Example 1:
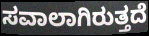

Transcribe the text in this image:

ಸವಾಲಾಗಿರುತ್ತದೆ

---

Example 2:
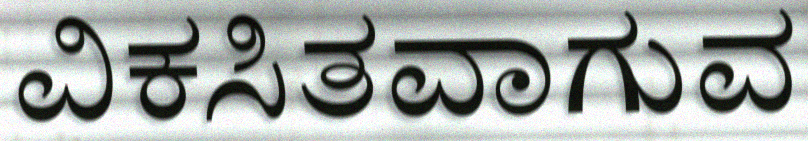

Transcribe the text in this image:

ವಿಕಸಿತವಾಗುವ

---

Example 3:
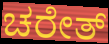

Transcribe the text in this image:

ಚರೇತ್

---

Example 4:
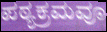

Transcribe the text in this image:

ಪಠ್ಯಕ್ರಮವೂ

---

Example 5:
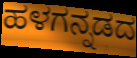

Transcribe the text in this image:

ಹಳಗನ್ನಡದ